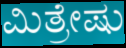
ಮಿತ್ರೇಷು